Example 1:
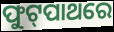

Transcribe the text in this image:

ଫୁଟ୍‍ପାଥରେ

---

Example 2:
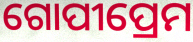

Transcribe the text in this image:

ଗୋପୀପ୍ରେମ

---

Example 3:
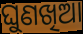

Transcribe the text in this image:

ଘୁଣଖିଆ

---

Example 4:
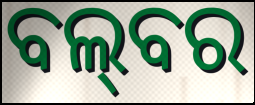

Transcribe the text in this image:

ବଲ୍‌ବର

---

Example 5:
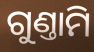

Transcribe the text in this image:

ଗୁଣ୍ତାମି